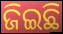
ଜିଇଛି